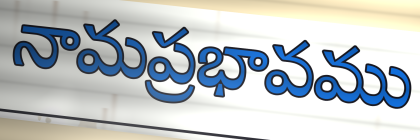
నామప్రభావము